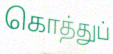
கொத்துப்